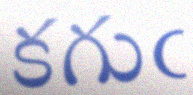
కగుఁ